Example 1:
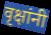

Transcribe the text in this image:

वृक्षांनी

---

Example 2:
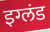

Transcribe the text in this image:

इग्लंड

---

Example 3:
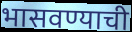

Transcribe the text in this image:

भासवण्याची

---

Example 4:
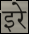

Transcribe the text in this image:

इरे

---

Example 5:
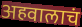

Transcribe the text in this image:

अहवालाचं